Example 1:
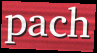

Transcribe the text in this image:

pach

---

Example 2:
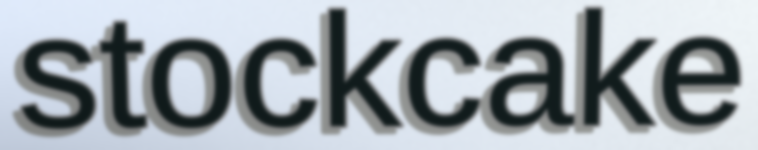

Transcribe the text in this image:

stockcake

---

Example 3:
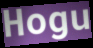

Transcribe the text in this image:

Hogu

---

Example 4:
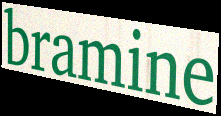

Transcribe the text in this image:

bramine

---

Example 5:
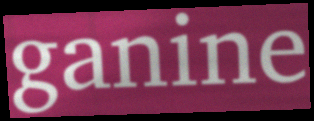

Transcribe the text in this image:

ganine